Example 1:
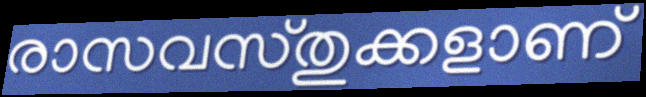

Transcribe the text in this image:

രാസവസ്തുക്കളാണ്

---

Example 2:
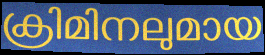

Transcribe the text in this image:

ക്രിമിനലുമായ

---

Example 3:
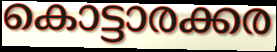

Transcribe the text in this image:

കൊട്ടാരക്കര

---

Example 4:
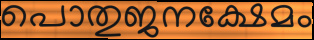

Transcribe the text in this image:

പൊതുജനക്ഷേമം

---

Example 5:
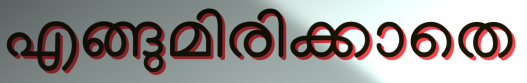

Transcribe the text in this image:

എങ്ങുമിരിക്കാതെ